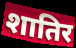
शातिर